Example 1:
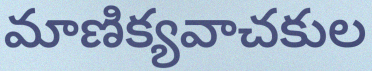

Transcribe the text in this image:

మాణిక్యవాచకుల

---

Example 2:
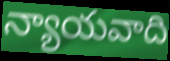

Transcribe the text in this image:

న్యాయవాది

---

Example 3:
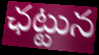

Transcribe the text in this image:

ఛట్టున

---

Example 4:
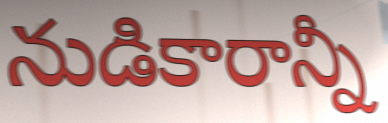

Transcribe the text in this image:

నుడికారాన్నీ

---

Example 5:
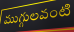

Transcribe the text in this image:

ముగ్గులవంటి